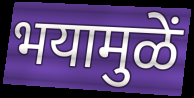
भयामुळें